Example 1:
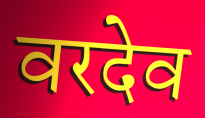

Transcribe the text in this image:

वरदेव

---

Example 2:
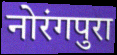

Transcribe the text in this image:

नोरंगपुरा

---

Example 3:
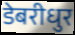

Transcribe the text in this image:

डेबरीधुर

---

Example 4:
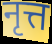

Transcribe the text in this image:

नृत्त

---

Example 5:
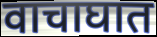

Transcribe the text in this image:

वाचाघात